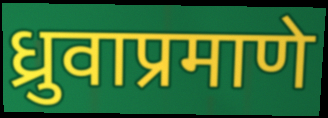
ध्रुवाप्रमाणे